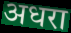
अधरा